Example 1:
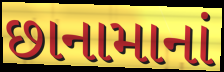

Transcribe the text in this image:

છાનામાનાં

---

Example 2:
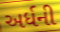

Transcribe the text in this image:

અર્ધની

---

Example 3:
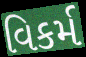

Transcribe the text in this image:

વિકર્મ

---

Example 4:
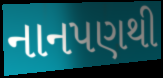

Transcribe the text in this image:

નાનપણથી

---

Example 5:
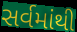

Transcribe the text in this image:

સર્વમાંથી